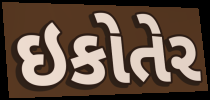
ઇકોતેર